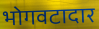
भोगवटादार